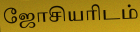
ஜோசியரிடம்